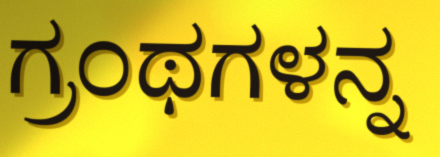
ಗ್ರಂಥಗಳನ್ನ